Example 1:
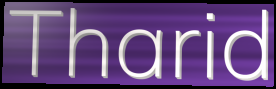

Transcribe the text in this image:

Tharid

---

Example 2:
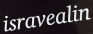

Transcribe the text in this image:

isravealin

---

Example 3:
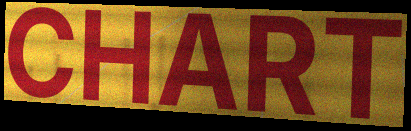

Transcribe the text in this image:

CHART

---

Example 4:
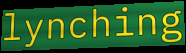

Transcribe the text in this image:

lynching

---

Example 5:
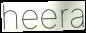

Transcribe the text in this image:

heera